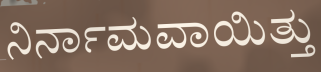
ನಿರ್ನಾಮವಾಯಿತ್ತು